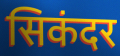
सिकंदर